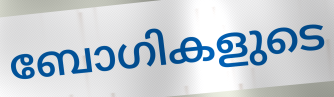
ബോഗികളുടെ